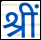
श्रीं